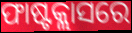
ଫାଷ୍ଟକ୍ଲାସରେ